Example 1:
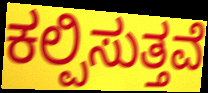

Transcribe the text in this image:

ಕಲ್ಪಿಸುತ್ತವೆ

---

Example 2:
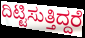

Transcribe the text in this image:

ದಿಟ್ಟಿಸುತ್ತಿದ್ದರೆ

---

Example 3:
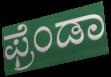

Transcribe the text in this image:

ಫ್ರೆಂಡಾ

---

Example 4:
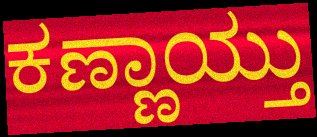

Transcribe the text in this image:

ಕಣ್ಣಾಯ್ತು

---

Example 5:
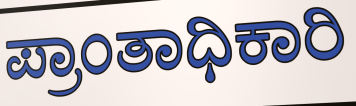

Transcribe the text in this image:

ಪ್ರಾಂತಾಧಿಕಾರಿ